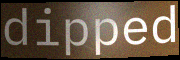
dipped